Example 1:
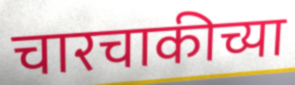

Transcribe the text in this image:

चारचाकीच्या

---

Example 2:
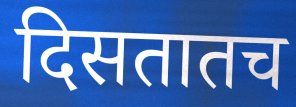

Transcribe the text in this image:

दिसतातच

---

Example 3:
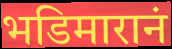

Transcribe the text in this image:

भडिमारानं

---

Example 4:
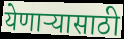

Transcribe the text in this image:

येणाऱ्यासाठी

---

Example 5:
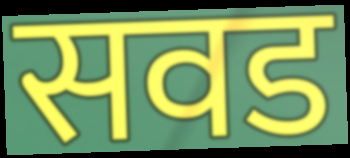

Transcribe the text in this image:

सवड